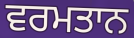
ਵਰਮਤਾਨ